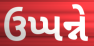
ઉપ્પન્ને